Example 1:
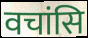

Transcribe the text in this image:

वचांसि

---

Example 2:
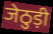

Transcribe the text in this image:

जेठुड़ी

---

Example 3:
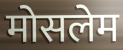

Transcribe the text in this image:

मोसलेम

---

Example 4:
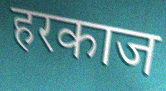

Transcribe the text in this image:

हरकाज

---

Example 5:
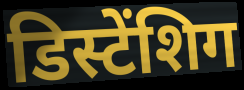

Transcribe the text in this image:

डिस्टेंशिग